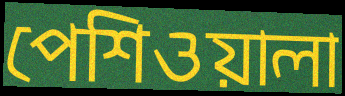
পেশিওয়ালা